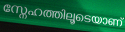
സ്നേഹത്തിലൂടെയാണ്